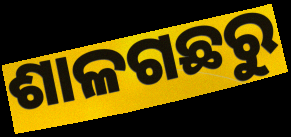
ଶାଳଗଛରୁ